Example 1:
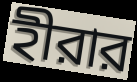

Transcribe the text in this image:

হীরার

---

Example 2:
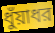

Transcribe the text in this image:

ধুঁয়াধর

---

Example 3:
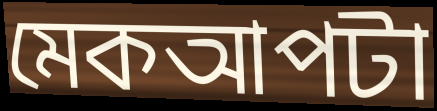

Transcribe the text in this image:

মেকআপটা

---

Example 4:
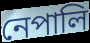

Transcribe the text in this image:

নেপালি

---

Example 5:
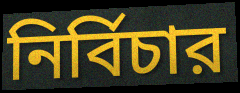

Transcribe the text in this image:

নির্বিচার